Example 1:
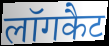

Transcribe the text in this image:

लॉगकैट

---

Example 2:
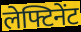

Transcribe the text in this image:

लेफ्टिनेंट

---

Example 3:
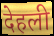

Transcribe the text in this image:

देहली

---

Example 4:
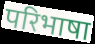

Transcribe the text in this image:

परिभाषा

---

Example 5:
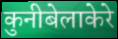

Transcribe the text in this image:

कुनीबेलाकेरे